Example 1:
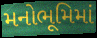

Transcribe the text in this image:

મનોભૂમિમાં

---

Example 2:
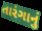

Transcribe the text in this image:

તારંગાનું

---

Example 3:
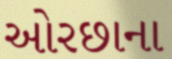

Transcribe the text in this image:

ઓરછાના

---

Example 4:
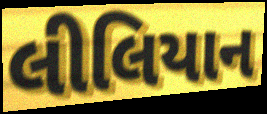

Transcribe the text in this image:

લીલિયાન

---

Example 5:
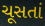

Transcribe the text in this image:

ચૂસતાં